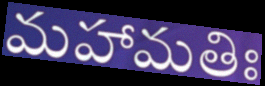
మహామతిః